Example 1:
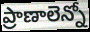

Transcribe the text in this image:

ప్రాణాలెన్నో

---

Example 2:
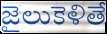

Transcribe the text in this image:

జైలుకెళితే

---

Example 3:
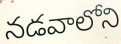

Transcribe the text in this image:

నడవాలోని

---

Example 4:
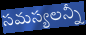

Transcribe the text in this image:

సమస్యలన్నీ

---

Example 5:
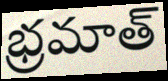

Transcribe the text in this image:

భ్రమాత్